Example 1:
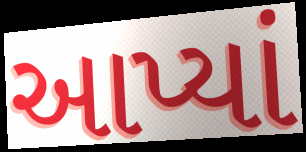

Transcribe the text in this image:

આપ્યાં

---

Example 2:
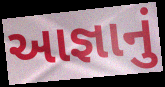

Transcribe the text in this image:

આજ્ઞાનું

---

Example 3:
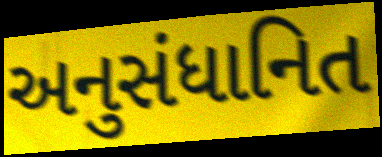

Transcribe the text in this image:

અનુસંધાનિત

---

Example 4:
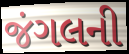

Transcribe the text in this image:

જંગલની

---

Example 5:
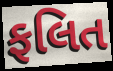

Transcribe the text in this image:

ફલિત